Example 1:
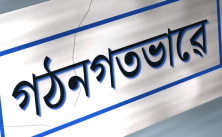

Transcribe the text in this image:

গঠনগতভাৱে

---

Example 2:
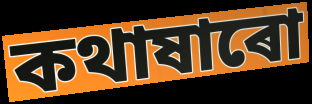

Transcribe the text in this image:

কথাষাৰো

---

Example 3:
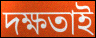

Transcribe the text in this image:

দক্ষতাই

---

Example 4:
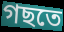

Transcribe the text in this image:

গছতে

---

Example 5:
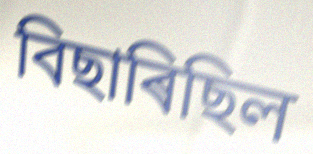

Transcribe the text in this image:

বিছাৰিছিল